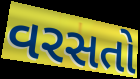
વરસતો